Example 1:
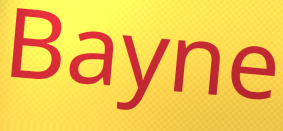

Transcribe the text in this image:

Bayne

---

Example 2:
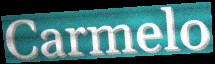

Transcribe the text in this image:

Carmelo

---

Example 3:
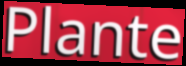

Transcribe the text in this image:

Plante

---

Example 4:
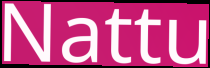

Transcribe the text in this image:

Nattu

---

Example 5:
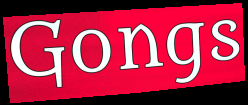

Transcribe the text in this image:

Gongs